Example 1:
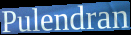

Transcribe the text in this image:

Pulendran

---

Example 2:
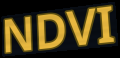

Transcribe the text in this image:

NDVI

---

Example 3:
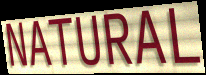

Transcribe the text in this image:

NATURAL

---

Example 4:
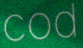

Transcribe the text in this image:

cod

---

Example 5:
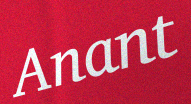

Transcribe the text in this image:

Anant